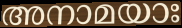
അനാമയാഃ